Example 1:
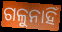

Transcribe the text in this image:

ଗଳୁନାହିଁ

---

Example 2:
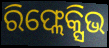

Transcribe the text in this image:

ରିଫ୍ଲେକ୍ସିଭ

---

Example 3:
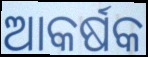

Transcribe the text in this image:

ଆକର୍ଷକ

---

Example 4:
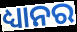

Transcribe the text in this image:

ଧ୍ୟାନର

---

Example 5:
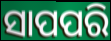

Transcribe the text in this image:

ସାପପରି